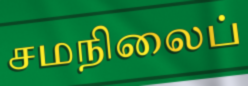
சமநிலைப்